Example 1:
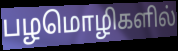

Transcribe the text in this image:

பழமொழிகளில்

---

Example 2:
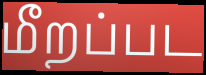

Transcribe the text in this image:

மீறப்பட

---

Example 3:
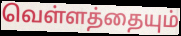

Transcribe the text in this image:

வெள்ளத்தையும்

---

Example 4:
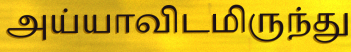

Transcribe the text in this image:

அய்யாவிடமிருந்து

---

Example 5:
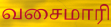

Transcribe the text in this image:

வசைமாரி